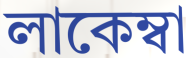
লাকেম্বা